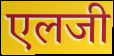
एलजी